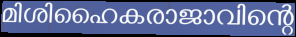
മിശിഹൈകരാജാവിന്റെ